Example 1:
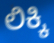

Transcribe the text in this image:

ಲಿಕ್ಕಿ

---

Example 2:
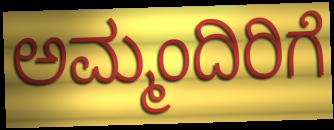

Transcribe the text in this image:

ಅಮ್ಮಂದಿರಿಗೆ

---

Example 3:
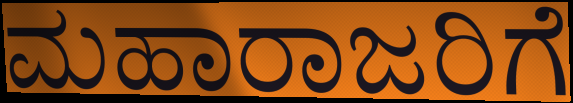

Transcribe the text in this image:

ಮಹಾರಾಜರಿಗೆ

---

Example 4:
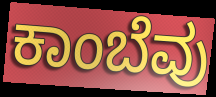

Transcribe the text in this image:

ಕಾಂಬೆವು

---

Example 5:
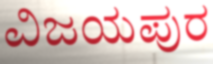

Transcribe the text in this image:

ವಿಜಯಪುರ